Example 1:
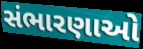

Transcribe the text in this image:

સંભારણાઓ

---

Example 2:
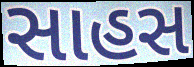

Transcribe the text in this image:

સાહસ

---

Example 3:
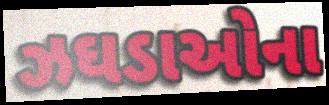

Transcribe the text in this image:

ઝઘડાઓના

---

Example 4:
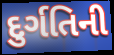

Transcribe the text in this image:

દુર્ગતિની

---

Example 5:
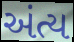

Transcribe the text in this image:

અંત્ય